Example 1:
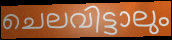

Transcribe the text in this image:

ചെലവിട്ടാലും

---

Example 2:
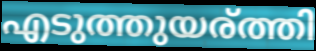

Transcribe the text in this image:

എടുത്തുയര്ത്തി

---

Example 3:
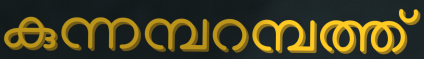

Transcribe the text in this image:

കുന്നമ്പറമ്പത്ത്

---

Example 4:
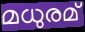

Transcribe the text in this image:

മധുരമ്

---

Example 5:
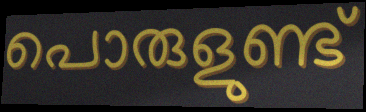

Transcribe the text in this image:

പൊരുളുണ്ട്